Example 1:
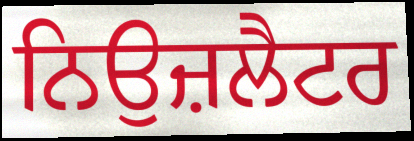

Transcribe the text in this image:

ਨਿਉਜ਼ਲੈਟਰ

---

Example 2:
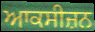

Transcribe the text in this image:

ਆਕਸੀਜ਼ਨ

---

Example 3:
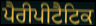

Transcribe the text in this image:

ਪੈਰੀਪੀਟੈਟਿਕ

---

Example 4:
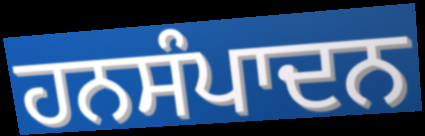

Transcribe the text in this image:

ਹਨਸੰਪਾਦਨ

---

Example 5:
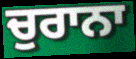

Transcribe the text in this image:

ਚੁਰਾਨਾ